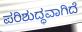
ಪರಿಶುದ್ಧವಾಗಿದೆ